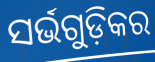
ସର୍ଭଗୁଡ଼ିକର